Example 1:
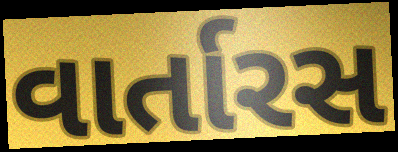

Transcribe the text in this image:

વાર્તારસ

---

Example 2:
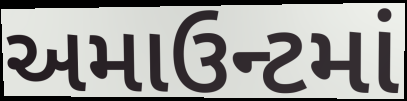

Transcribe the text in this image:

અમાઉન્ટમાં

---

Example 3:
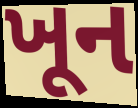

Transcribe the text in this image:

ખૂન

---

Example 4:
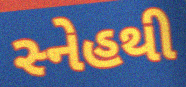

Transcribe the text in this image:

સ્નેહથી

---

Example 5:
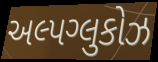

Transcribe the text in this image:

અલ્પગ્લુકોઝ